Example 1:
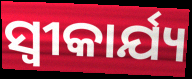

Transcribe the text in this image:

ସ୍ଵୀକାର୍ଯ୍ୟ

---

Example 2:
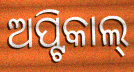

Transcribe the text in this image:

ଅପ୍ଟିକାଲ୍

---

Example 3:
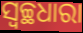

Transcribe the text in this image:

ସ୍ୱଚ୍ଛଧାରା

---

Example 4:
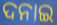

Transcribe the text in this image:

ଦନାଇ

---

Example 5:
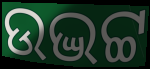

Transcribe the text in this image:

ଉଦ୍ଭଟ୍ଟ